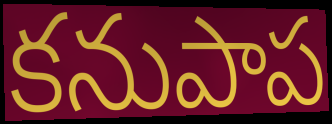
కనుపాప